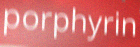
porphyrin